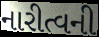
નારીત્વની